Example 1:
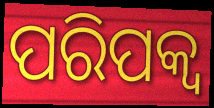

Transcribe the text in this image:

ପରିପକ୍ଵ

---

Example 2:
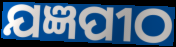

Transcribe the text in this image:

ଯଜ୍ଞପୀଠ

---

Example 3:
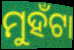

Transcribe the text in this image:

ମୁହଁଟା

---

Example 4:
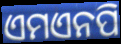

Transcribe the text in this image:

ଏମଏନପି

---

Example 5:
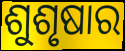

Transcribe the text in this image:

ଶୁଶୃଷାର